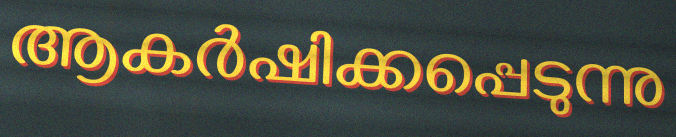
ആകർഷിക്കപ്പെടുന്നു